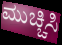
ಮುಚ್ಚಿಸಿ